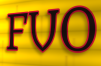
FUO